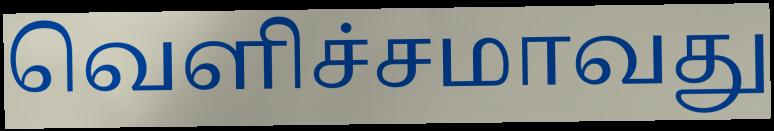
வெளிச்சமாவது